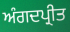
ਅੰਗਦਪ੍ਰੀਤ